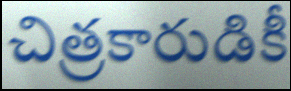
చిత్రకారుడికీ